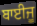
ਬਾਈਜੂ